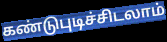
கண்டுபுடிச்சிடலாம்